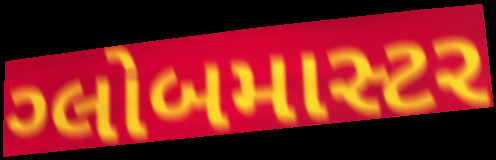
ગ્લોબમાસ્ટર